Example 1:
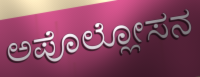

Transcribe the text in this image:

ಅಪೊಲ್ಲೋಸನ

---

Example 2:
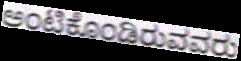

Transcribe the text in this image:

ಅಂಟಿಕೊಂಡಿರುವವರು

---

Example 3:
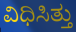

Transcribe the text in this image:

ವಿಧಿಸಿತ್ತು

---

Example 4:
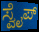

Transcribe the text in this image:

ಸ್ವೈಪ್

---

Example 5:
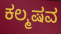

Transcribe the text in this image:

ಕಲ್ಮಷವ